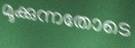
മൂക്കുന്നതോടെ